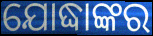
ଯୋଦ୍ଧାଙ୍କର